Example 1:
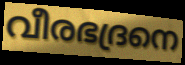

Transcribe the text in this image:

വീരഭദ്രനെ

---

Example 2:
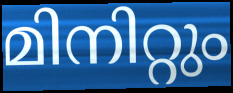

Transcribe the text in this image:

മിനിറ്റും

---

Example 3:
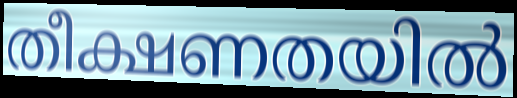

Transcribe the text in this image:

തീക്ഷണതയിൽ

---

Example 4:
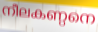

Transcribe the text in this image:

നീലകണ്ഠനെ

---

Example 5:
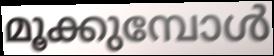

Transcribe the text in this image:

മൂക്കുമ്പോൾ